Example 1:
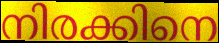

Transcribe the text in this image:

നിരക്കിനെ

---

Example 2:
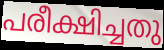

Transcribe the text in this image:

പരീക്ഷിച്ചതു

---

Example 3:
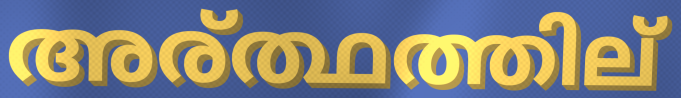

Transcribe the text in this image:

അര്ത്ഥത്തില്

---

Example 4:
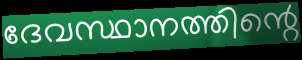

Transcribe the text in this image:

ദേവസ്ഥാനത്തിന്റെ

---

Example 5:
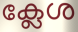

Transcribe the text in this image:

ക്ലേശ